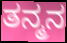
ತನ್ಮನ